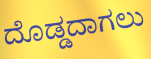
ದೊಡ್ಡದಾಗಲು